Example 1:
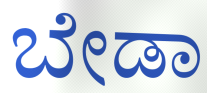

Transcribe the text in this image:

ಬೇಡಾ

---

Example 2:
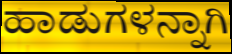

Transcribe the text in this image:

ಹಾಡುಗಳನ್ನಾಗಿ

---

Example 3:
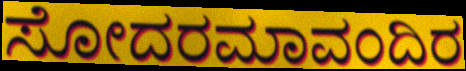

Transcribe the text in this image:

ಸೋದರಮಾವಂದಿರ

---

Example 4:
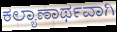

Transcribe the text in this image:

ಕಲ್ಯಾಣಾರ್ಥವಾಗಿ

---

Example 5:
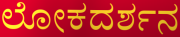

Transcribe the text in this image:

ಲೋಕದರ್ಶನ